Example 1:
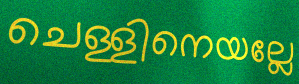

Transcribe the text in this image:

ചെള്ളിനെയല്ലേ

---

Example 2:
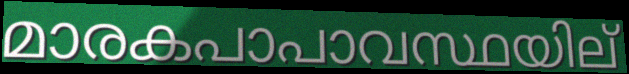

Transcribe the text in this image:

മാരകപാപാവസ്ഥയില്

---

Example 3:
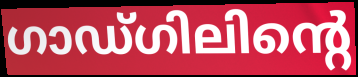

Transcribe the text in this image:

ഗാഡ്ഗിലിന്റെ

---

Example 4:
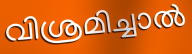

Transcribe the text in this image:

വിശ്രമിച്ചാൽ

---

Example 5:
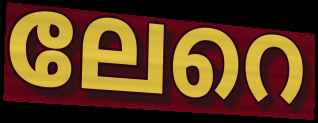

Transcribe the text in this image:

ലേറെ